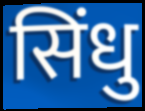
सिंधु